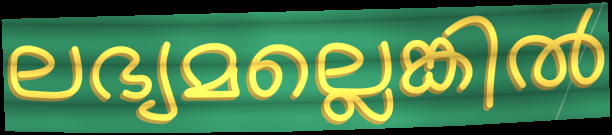
ലഭ്യമല്ലെങ്കിൽ